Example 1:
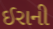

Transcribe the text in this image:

ઈરાની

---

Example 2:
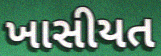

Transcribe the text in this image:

ખાસીયત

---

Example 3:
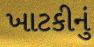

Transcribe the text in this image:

ખાટકીનું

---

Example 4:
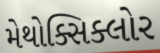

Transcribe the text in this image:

મેથોક્સિક્લોર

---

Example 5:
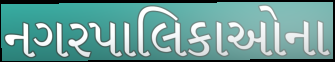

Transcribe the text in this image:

નગરપાલિકાઓના